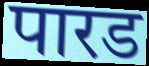
पारड